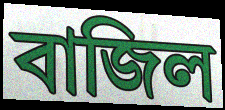
বাজিল